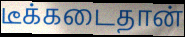
டீக்கடைதான்